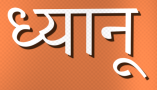
ध्यानू